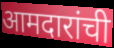
आमदारांची